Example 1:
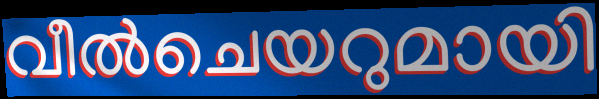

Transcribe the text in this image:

വീൽചെയറുമായി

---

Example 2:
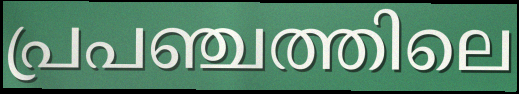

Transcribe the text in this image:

പ്രപഞ്ചത്തിലെ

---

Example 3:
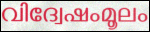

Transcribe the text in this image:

വിദ്വേഷംമൂലം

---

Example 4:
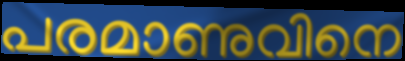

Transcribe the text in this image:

പരമാണുവിനെ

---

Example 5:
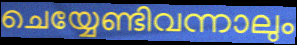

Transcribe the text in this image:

ചെയ്യേണ്ടിവന്നാലും